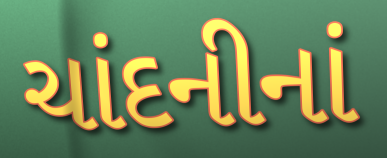
ચાંદનીનાં